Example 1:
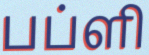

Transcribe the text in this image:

பப்ளி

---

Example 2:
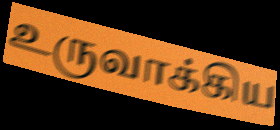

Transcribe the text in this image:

உருவாக்கிய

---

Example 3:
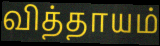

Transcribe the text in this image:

வித்தாயம்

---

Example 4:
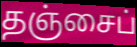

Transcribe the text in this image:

தஞ்சைப்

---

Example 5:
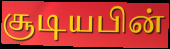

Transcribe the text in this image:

சூடியபின்